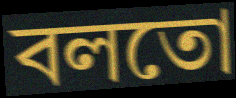
বলতো